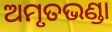
ଅମୃତଭଣ୍ଡା